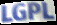
LGPL